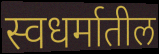
स्वधर्मातील